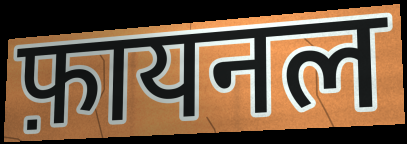
फ़ायनल